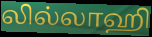
லில்லாஹி